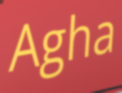
Agha